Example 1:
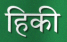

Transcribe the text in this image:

हिकी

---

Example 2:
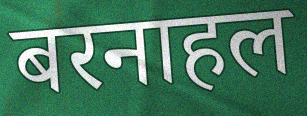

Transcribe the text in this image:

बरनाहल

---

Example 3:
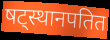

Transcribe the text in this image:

षट्स्थानपतित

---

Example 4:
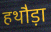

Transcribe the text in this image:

हथौड़ा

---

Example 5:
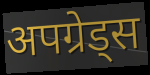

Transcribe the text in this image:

अपग्रेड्स